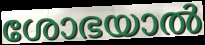
ശോഭയാൽ